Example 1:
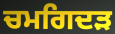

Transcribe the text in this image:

ਚਮਗਿਦੜ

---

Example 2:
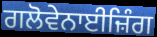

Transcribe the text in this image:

ਗਲੋਵੇਨਾਈਜ਼ਿੰਗ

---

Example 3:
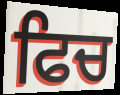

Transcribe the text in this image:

ਫਿਚ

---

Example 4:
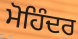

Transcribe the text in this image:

ਮੋਹਿੰਦਰ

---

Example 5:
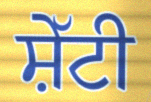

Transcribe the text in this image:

ਸ਼ੇੱਟੀ